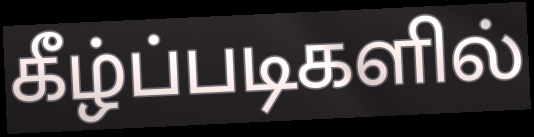
கீழ்ப்படிகளில்